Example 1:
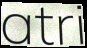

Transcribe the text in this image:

atri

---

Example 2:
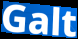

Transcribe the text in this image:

Galt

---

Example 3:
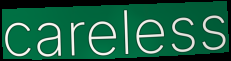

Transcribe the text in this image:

careless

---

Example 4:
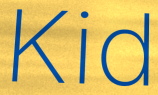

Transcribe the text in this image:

Kid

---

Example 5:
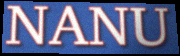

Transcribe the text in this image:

NANU